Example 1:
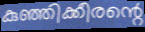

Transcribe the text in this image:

കുഞ്ഞിക്കീരന്റെ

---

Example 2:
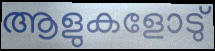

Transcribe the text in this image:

ആളുകളോടു്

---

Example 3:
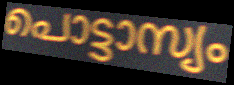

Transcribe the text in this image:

പൊട്ടാസ്യം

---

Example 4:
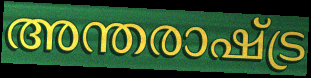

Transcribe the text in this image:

അന്തരാഷ്ട്ര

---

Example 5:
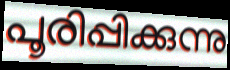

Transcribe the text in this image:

പൂരിപ്പിക്കുന്നു